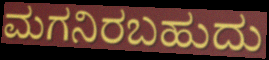
ಮಗನಿರಬಹುದು